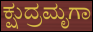
ಕ್ಷುದ್ರಮೃಗಾ